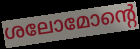
ശലോമോന്റെ